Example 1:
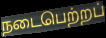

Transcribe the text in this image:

நடைபெற்றப்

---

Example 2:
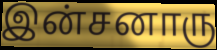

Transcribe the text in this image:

இன்சனாரு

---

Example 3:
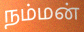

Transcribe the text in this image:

நம்மன்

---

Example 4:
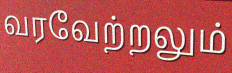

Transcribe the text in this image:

வரவேற்றலும்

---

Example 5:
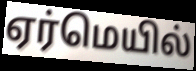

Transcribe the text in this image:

ஏர்மெயில்